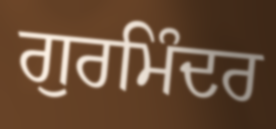
ਗੁਰਮਿੰਦਰ